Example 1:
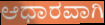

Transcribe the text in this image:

ಆಧಾರವಾಗಿ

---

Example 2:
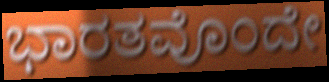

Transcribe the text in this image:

ಭಾರತವೊಂದೇ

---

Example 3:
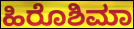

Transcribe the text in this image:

ಹಿರೊಶಿಮಾ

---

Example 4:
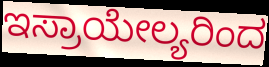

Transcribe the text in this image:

ಇಸ್ರಾಯೇಲ್ಯರಿಂದ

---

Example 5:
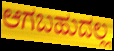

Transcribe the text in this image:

ಆಗಬಹುದಲ್ಲ